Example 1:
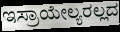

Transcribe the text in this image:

ಇಸ್ರಾಯೇಲ್ಯರಲ್ಲದ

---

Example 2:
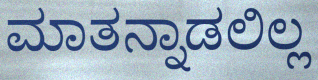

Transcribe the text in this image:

ಮಾತನ್ನಾಡಲಿಲ್ಲ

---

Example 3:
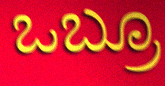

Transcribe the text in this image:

ಒಬ್ರೂ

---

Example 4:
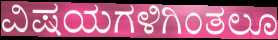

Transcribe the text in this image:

ವಿಷಯಗಳಿಗಿಂತಲೂ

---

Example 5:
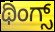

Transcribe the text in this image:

ಥಿಂಗ್ಸ್